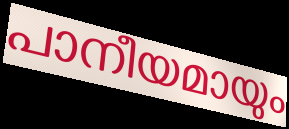
പാനീയമായും